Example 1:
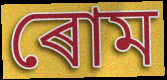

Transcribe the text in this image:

ৰোম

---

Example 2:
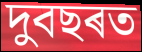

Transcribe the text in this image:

দুবছৰত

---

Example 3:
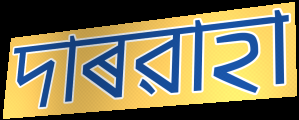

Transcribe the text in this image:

দাৰৱাহা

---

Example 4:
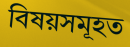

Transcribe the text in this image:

বিষয়সমূহত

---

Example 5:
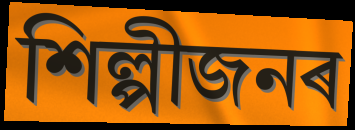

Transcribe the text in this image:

শিল্পীজনৰ